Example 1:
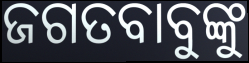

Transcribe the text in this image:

ଜଗତବାବୁଙ୍କୁ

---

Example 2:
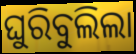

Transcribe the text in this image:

ଘୁରିବୁଲିଲା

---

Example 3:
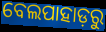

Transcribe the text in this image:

ବେଲପାହାଡ଼ରୁ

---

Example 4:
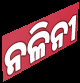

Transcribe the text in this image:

ନଳିନୀ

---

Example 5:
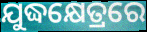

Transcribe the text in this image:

ଯୁଦ୍ଧକ୍ଷେତ୍ରରେ